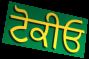
ਟੋਕੀਓ